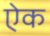
ऐक